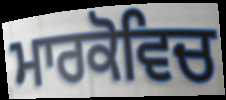
ਮਾਰਕੋਵਿਚ